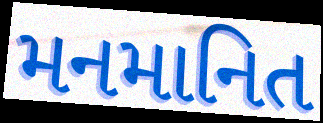
મનમાનિત